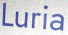
Luria